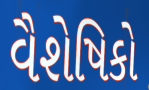
વૈશેષિકો